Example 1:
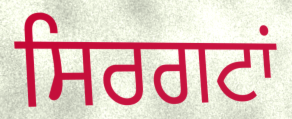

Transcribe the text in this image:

ਸਿਰਗਟਾਂ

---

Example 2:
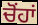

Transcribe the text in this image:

ਚੋਂਹਾਂ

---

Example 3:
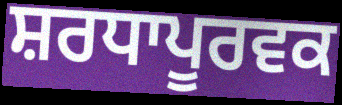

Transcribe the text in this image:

ਸ਼ਰਧਾਪੂਰਵਕ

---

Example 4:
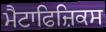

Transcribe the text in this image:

ਮੈਟਾਫਿਜ਼ਿਕਸ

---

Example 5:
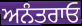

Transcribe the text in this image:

ਅਨੰਤਰਾਓ